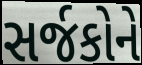
સર્જકોને